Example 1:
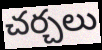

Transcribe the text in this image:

చర్చలు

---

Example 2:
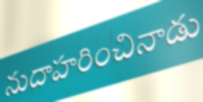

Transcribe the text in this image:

నుదాహరించినాడు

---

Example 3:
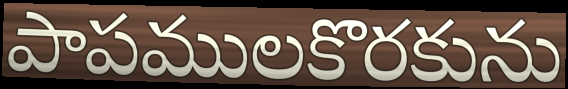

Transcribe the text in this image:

పాపములకొరకును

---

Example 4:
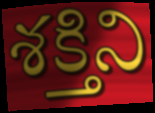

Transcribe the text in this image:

శక్తిని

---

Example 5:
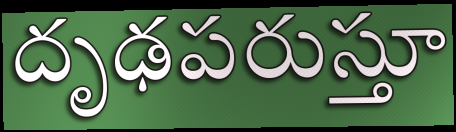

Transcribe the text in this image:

దృఢపరుస్తూ